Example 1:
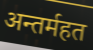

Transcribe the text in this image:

अन्तर्महत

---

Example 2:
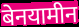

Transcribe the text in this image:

बेनयामीन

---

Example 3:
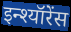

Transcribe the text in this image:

इन्श्यॉरेंस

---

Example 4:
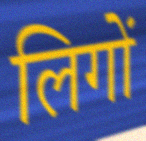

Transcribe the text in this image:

लिगों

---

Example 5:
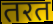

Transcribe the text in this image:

तरत